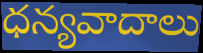
ధన్యవాదాలు